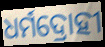
ଧର୍ମଦ୍ରୋହୀ